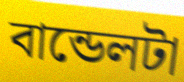
বান্ডেলটা